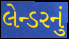
લેન્ડરનું